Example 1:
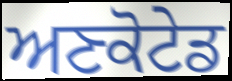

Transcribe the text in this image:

ਅਣਕੋਟੇਡ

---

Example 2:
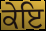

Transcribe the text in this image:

ਕੇਇ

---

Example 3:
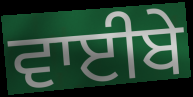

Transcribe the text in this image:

ਵਾਈਬੇ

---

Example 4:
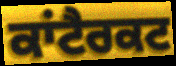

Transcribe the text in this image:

ਕਾਂਟੈਰਕਟ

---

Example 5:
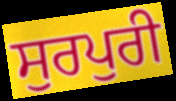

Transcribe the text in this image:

ਸੁਰਪੁਰੀ